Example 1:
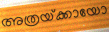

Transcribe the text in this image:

അത്രയ്‌ക്കായോ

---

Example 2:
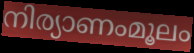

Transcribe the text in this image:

നിര്യാണംമൂലം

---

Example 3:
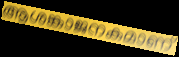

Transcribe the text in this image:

ആശങ്കാജനകമാണ്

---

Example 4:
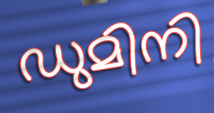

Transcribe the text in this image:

ഡുമിനി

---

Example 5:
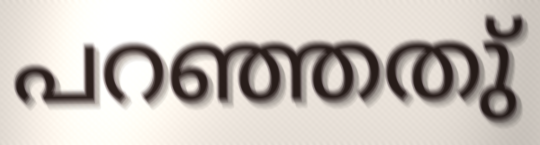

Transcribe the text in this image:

പറഞ്ഞതു്